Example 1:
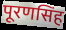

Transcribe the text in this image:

पूरणसिंह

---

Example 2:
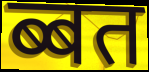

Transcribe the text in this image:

ब्बत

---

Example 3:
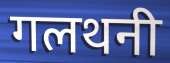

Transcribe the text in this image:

गलथनी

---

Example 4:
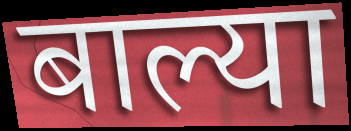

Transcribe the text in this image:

बाल्या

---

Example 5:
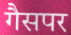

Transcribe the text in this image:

गैसपर